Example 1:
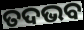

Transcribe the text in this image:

ତଦଭବ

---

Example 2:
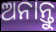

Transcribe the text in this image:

ଅନାନ୍ତୁ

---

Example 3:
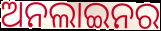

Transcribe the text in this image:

ଅନଲାଇନର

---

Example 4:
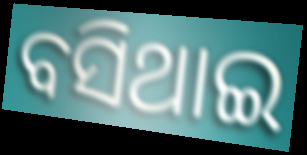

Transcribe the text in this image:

ବସିଥାଇ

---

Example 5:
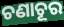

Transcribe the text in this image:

ଚଣାଚୂର